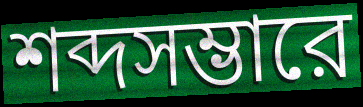
শব্দসম্ভারে